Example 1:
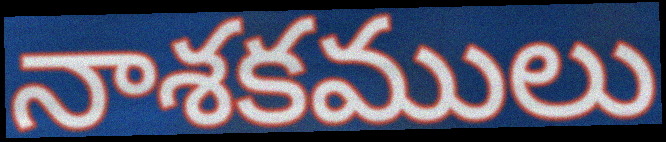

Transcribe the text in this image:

నాశకములు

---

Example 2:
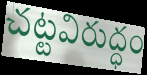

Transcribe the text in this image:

చట్టవిరుద్ధం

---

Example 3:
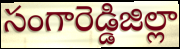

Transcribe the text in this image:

సంగారెడ్డిజిల్లా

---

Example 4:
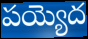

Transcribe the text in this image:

పయ్యెద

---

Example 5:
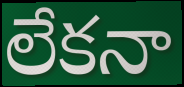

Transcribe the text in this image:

లేకనా